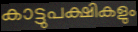
കാട്ടുപക്ഷികളും